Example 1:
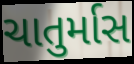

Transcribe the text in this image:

ચાતુર્માસ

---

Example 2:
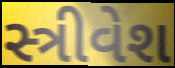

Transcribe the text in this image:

સ્ત્રીવેશ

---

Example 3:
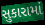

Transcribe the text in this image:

સુકારામાં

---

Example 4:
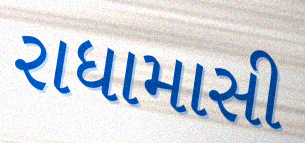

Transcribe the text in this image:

રાધામાસી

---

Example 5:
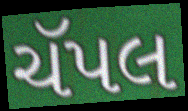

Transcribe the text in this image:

ચૅપલ